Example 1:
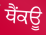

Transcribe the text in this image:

ਥੈਂਕਊ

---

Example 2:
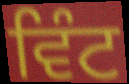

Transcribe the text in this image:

ਵਿੰਟ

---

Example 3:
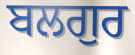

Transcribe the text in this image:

ਬਲਗੁਰ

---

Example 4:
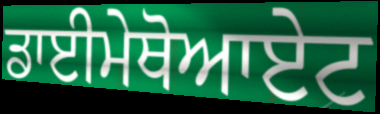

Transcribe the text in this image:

ਡਾਈਮੇਥੋਆਏਟ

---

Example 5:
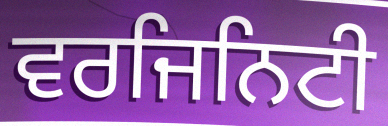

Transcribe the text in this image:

ਵਰਜਿਨਿਟੀ